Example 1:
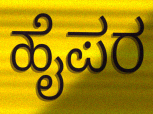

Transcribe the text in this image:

ಹೈಪರ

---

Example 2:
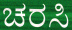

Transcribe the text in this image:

ಚರಸಿ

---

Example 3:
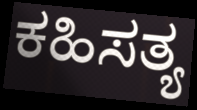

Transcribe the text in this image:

ಕಹಿಸತ್ಯ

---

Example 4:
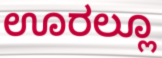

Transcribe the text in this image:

ಊರಲ್ಲೂ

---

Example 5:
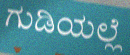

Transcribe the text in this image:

ಗುಡಿಯಲ್ಲೆ